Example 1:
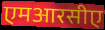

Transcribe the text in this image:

एमआरसीए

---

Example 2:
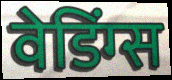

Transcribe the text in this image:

वेडिंग्स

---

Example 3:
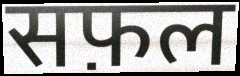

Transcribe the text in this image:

सफ़ल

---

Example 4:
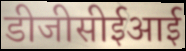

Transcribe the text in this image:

डीजीसीईआई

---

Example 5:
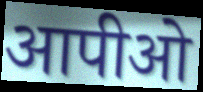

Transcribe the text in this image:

आपीओ